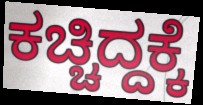
ಕಚ್ಚಿದ್ದಕ್ಕೆ